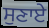
ਸੁਣਾਏ